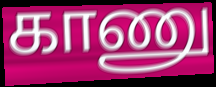
காணு